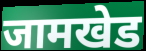
जामखेड